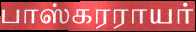
பாஸ்கரராயர்